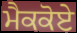
ਮੈਕਕੋਏ